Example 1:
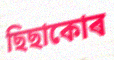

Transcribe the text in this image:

ছিছাকোৰ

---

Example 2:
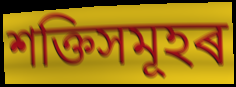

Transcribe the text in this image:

শক্তিসমূহৰ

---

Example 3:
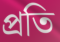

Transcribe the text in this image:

প্ৰতি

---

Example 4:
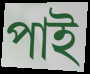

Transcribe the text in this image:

পাই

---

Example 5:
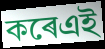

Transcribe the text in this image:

কৰেএই